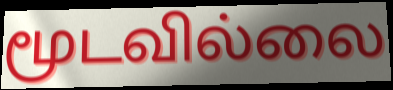
மூடவில்லை